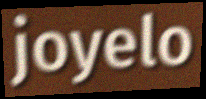
joyelo